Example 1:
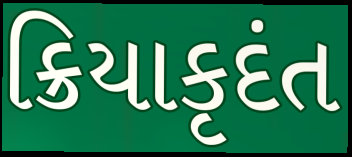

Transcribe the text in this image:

ક્રિયાકૃદંત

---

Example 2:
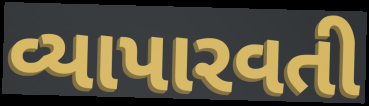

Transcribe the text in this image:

વ્યાપારવતી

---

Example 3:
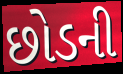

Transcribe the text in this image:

છોડની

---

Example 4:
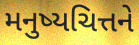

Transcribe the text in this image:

મનુષ્યચિત્તને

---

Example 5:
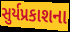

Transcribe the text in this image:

સુર્યપ્રકાશના